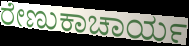
ರೇಣುಕಾಚಾರ್ಯ